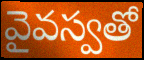
వైవస్వతో